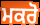
ਮਕਰੋ